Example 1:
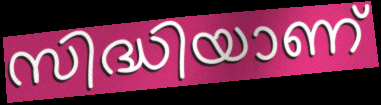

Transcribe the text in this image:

സിദ്ധിയാണ്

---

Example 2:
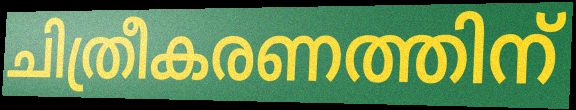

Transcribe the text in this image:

ചിത്രീകരണത്തിന്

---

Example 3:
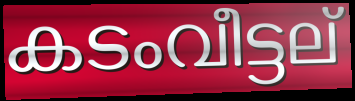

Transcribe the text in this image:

കടംവീട്ടല്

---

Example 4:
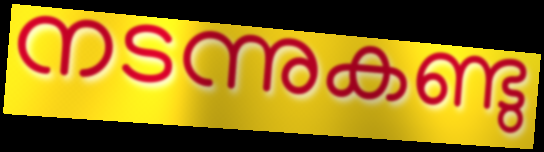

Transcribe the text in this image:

നടന്നുകണ്ടു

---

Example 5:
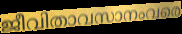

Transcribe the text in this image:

ജീവിതാവസാനംവരെ